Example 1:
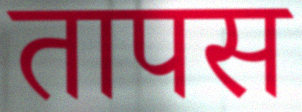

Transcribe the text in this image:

तापस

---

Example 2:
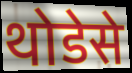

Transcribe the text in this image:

थोडेसे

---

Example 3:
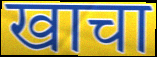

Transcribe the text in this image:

खाचा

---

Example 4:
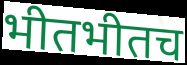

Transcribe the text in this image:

भीतभीतच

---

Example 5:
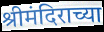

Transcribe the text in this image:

श्रीमंदिराच्या